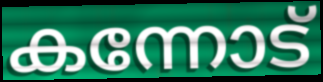
കന്നോട്